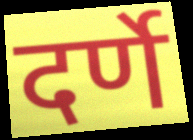
दर्णे